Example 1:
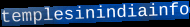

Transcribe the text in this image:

templesinindiainfo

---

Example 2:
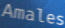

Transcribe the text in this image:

Amales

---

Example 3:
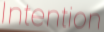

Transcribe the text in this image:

Intention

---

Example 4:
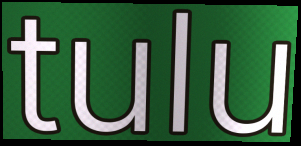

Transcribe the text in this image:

tulu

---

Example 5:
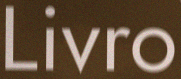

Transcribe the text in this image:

Livro